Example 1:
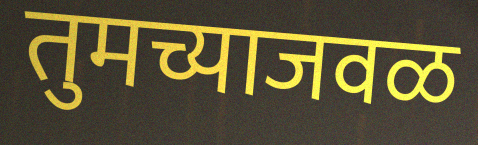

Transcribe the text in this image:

तुमच्याजवळ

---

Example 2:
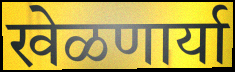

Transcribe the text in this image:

खेळणार्या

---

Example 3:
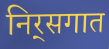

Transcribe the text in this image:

निर्सगात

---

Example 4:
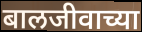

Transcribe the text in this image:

बालजीवाच्या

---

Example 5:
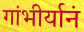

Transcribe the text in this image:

गांभीर्यानं